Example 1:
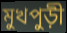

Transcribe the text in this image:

মুখপুড়ী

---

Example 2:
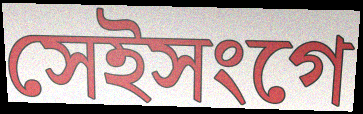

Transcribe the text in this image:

সেইসংগে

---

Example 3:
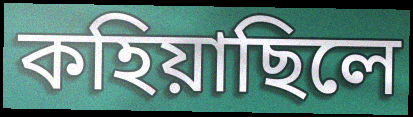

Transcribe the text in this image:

কহিয়াছিলে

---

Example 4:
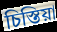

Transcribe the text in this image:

চিস্তিয়া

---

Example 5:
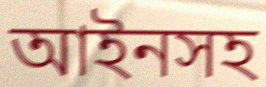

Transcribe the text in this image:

আইনসহ